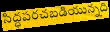
సిద్ధపరచబడియున్నది